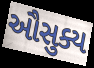
ઔસુક્ય